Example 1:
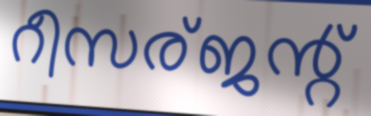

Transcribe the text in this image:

റീസര്ജന്റ്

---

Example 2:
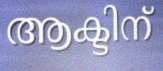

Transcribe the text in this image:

ആക്ടിന്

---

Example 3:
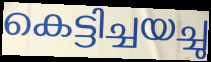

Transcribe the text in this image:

കെട്ടിച്ചയച്ചു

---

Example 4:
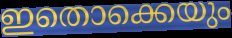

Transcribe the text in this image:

ഇതൊക്കെയും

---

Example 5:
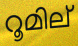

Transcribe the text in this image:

റൂമില്